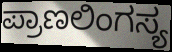
ಪ್ರಾಣಲಿಂಗಸ್ಯ